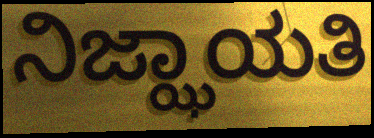
ನಿಜ್ಝಾಯತಿ